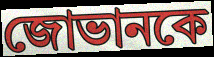
জোভানকে